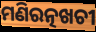
ମଣିରତ୍ନଖଚୀ